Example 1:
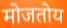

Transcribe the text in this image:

मोजतोय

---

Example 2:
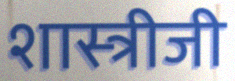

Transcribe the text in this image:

शास्त्रीजी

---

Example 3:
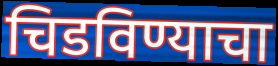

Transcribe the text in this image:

चिडविण्याचा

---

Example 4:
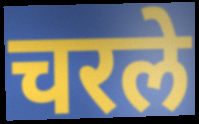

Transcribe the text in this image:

चरले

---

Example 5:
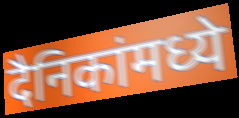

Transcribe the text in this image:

दैनिकांमध्ये